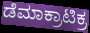
ಡೆಮಾಕ್ರಾಟಿಕ್ರ